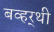
बव्हर्थी